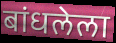
बांधलेला